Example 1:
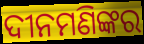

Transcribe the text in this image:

ଦୀନମଣିଙ୍କର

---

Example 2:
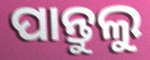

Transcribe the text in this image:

ପାନ୍ତୁଲୁ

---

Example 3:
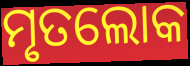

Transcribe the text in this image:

ମୃତଲୋକ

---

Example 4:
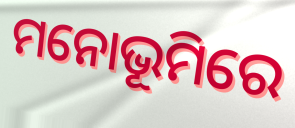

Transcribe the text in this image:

ମନୋଭୂମିରେ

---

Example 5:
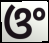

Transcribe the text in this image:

ଓଂ